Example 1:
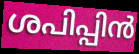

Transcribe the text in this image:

ശപിപ്പിൻ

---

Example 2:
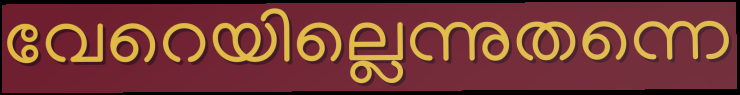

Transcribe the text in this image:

വേറെയില്ലെന്നുതന്നെ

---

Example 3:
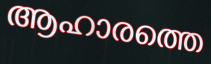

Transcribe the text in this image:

ആഹാരത്തെ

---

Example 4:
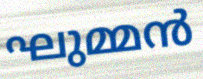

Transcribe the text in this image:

ഘുമ്മൻ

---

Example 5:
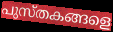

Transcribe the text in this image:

പുസ്തകങ്ങളെ